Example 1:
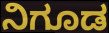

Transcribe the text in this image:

ನಿಗೂಡ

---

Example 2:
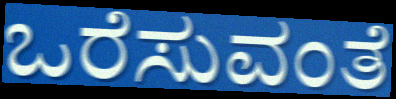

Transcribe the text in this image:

ಒರೆಸುವಂತೆ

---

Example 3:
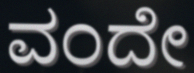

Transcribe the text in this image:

ವಂದೇ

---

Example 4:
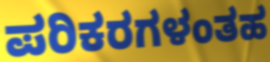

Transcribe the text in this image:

ಪರಿಕರಗಳಂತಹ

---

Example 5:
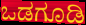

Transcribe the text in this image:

ಒಡಗೂಡಿ